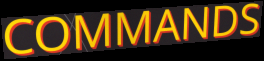
COMMANDS